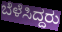
ಬೆಳೆಸಿದ್ದರು